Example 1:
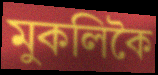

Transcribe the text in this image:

মুকলিকৈ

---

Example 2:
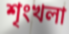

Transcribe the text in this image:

শৃংখলা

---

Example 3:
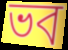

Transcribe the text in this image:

ভব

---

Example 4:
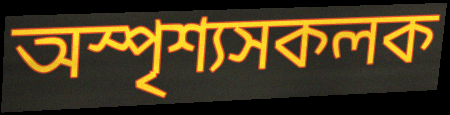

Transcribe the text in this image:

অস্পৃশ্যসকলক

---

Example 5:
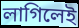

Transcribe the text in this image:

লাগিলেই